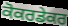
ਕੋਕਰਡੇਕਰ